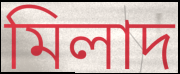
মিলাদ